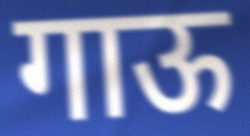
गाऊ